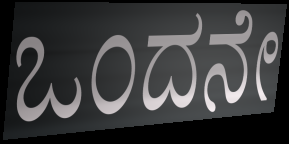
ಒಂದನೇ